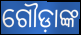
ଗୌଡ଼ାଙ୍କ